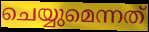
ചെയ്യുമെന്നത്